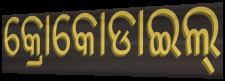
କ୍ରୋକୋଡାଇଲ୍